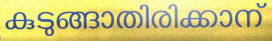
കുടുങ്ങാതിരിക്കാന്